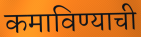
कमाविण्याची